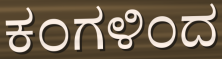
ಕಂಗಳಿಂದ